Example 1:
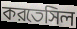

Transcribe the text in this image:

করতেসিল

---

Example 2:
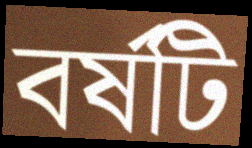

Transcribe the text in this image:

বর্ষটি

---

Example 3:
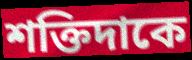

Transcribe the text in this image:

শক্তিদাকে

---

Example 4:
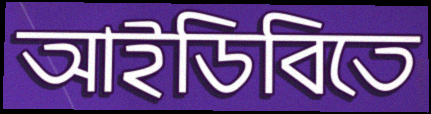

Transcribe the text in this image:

আইডিবিতে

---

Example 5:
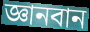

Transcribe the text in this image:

জ্ঞানবান